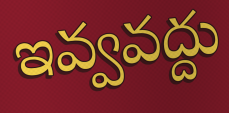
ఇవ్వవద్దు